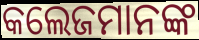
କଲେଜମାନଙ୍କ